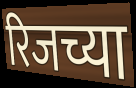
रिजच्या